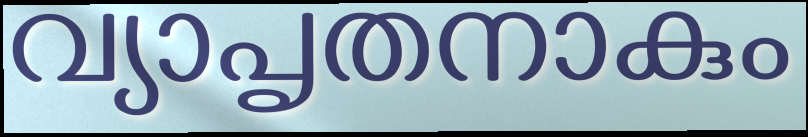
വ്യാപൃതനാകും